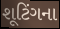
શૂટિંગના